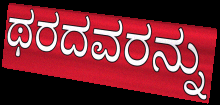
ಥರದವರನ್ನು